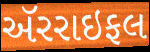
ઍરરાઇફલ